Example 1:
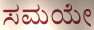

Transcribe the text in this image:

ಸಮಯೇ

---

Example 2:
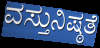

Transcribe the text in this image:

ವಸ್ತುನಿಷ್ಠತೆ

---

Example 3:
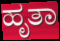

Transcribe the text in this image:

ಹೃತಾ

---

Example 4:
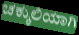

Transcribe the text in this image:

ಚಕ್ಕುಲಿಯಾಗಿ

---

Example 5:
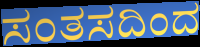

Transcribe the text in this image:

ಸಂತಸದಿಂದ